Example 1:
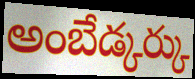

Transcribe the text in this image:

అంబేడ్కర్కు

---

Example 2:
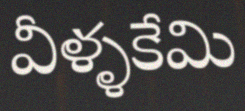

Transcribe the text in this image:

వీళ్ళకేమి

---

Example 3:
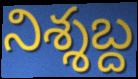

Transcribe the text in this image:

నిశ్శబ్ద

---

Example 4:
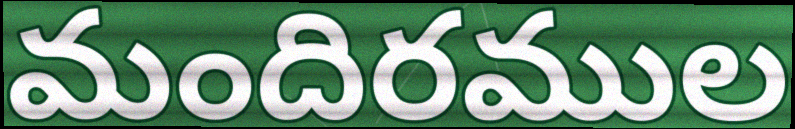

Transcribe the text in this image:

మందిరముల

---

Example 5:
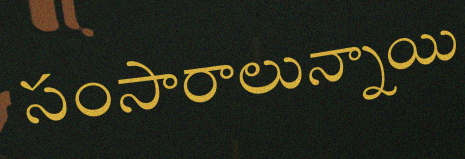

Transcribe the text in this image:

సంసారాలున్నాయి